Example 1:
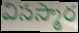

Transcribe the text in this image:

విసస్మార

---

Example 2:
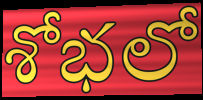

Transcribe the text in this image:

శోభలో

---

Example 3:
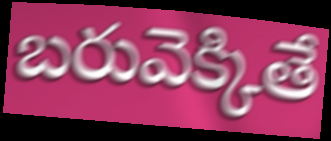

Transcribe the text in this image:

బరువెక్కితే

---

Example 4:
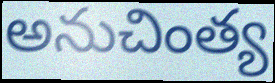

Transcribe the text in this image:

అనుచింత్య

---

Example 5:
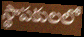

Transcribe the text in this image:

స్థాపకులలో